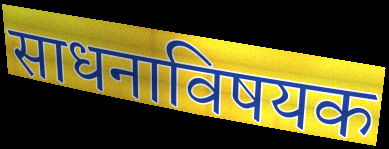
साधनाविषयक